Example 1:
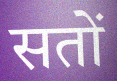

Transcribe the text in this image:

सतों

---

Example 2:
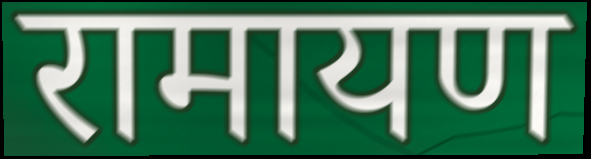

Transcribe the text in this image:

रामायण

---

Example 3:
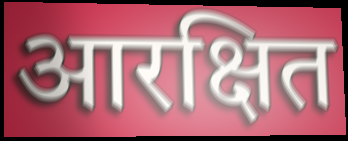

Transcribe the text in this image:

आरक्षित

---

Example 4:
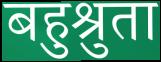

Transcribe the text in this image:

बहुश्रुता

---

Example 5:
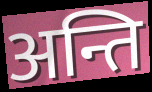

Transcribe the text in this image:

अन्ति